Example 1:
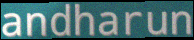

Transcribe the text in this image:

andharun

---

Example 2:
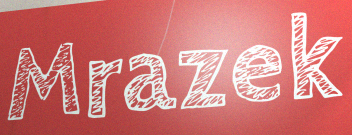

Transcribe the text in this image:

Mrazek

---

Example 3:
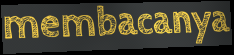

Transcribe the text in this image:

membacanya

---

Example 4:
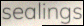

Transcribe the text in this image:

sealings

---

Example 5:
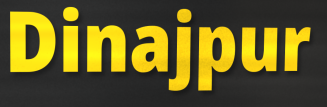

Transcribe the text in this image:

Dinajpur